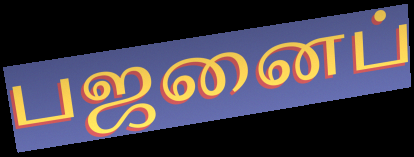
பஜனைப்